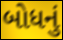
બોધનું